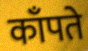
काँपते